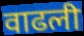
वाढली